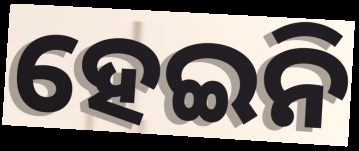
ହେଇନି